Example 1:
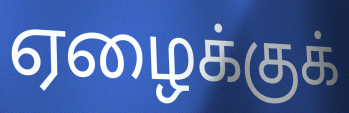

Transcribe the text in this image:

ஏழைக்குக்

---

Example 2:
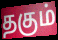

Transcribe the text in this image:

தகும்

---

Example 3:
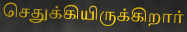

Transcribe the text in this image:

செதுக்கியிருக்கிறார்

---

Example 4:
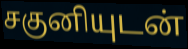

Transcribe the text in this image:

சகுனியுடன்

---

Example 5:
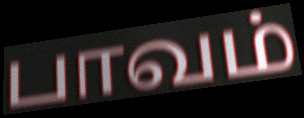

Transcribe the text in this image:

பாவம்